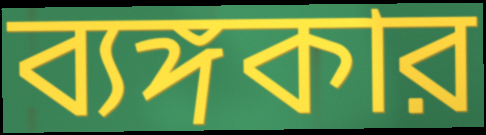
ব্যঙ্গকার